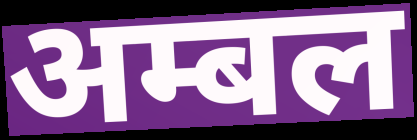
अम्बल